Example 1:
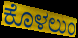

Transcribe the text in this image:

ಕೊಳಲುಂ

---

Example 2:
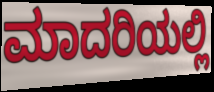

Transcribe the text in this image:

ಮಾದರಿಯಲ್ಲಿ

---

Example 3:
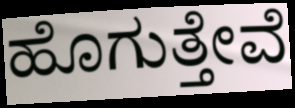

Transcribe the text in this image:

ಹೊಗುತ್ತೇವೆ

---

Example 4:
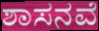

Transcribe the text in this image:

ಶಾಸನವೆ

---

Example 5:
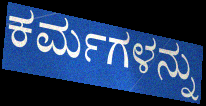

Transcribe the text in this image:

ಕರ್ಮಗಳನ್ನು